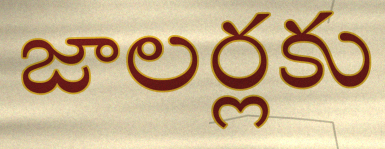
జాలర్లకు